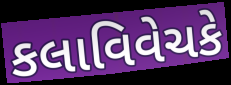
કલાવિવેચકે